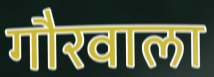
गौरवाला